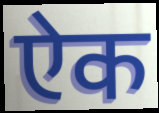
ऐक